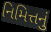
નિમિત્તનું